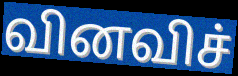
வினவிச்